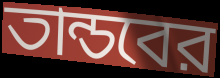
তান্ডবের